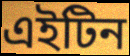
এইটিন